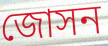
জোসন